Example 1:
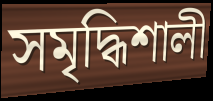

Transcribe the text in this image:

সমৃদ্ধিশালী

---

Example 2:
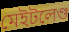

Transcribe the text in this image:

মেইটলেণ্ড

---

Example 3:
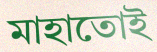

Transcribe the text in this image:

মাহাতোই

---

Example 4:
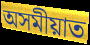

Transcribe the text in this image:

অসমীয়াত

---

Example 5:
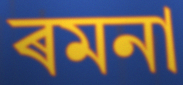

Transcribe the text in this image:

ৰমনা